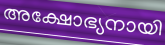
അക്ഷോഭ്യനായി